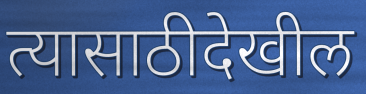
त्यासाठीदेखील